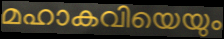
മഹാകവിയെയും